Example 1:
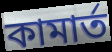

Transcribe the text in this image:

কামাৰ্ত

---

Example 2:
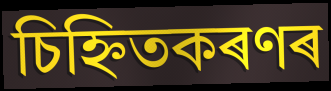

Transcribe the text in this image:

চিহ্নিতকৰণৰ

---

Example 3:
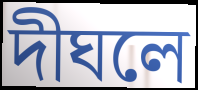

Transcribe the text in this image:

দীঘলে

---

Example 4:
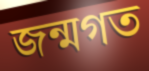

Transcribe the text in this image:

জন্মগত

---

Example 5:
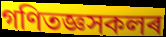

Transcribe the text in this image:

গণিতজ্ঞসকলৰ